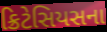
ક્રિટેસિયસના